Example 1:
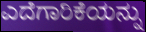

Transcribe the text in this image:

ಎದೆಗಾರಿಕೆಯನ್ನು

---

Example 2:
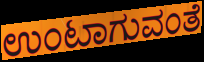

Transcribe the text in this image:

ಉಂಟಾಗುವಂತೆ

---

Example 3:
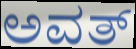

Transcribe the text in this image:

ಅವತ್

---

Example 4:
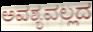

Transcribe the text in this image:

ಅವಶ್ಯವಲ್ಲದ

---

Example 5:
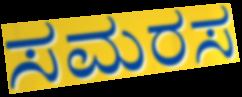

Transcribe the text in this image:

ಸಮರಸ